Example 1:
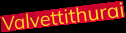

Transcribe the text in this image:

Valvettithurai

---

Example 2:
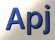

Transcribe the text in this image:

Apj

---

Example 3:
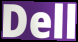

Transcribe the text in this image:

Dell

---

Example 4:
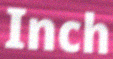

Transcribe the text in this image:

Inch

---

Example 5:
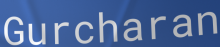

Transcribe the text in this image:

Gurcharan